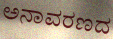
ಅನಾವರಣದ